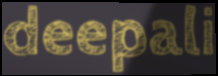
deepali